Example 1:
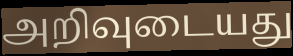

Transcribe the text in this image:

அறிவுடையது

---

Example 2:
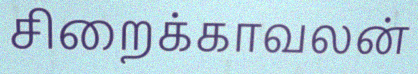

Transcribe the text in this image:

சிறைக்காவலன்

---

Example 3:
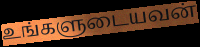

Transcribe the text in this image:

உங்களுடையவன்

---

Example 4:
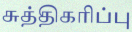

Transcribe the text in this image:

சுத்திகரிப்பு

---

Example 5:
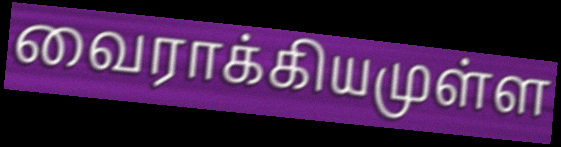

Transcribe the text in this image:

வைராக்கியமுள்ள